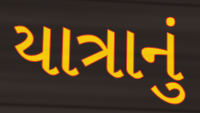
યાત્રાનું